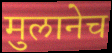
मुलानेच